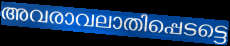
അവരാവലാതിപ്പെടട്ടെ